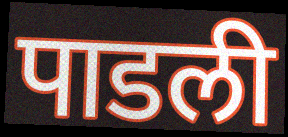
पाडली